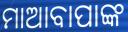
ମାଆବାପାଙ୍କ